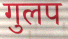
गुलप